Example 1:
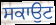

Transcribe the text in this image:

ਸਕਾਉਟ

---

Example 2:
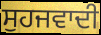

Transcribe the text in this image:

ਸੁਹਜਵਾਦੀ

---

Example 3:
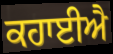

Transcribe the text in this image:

ਕਹਾਈਐ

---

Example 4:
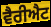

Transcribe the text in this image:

ਵੈਰੀਐਟ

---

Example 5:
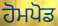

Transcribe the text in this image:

ਹੋਮਪੋਡ